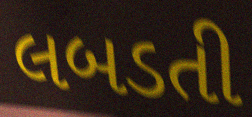
લબડતી